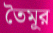
তৈমূর